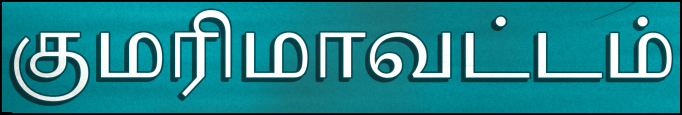
குமரிமாவட்டம்